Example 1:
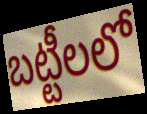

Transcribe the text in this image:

బట్టీలలో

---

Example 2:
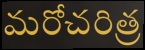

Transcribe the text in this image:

మరోచరిత్ర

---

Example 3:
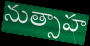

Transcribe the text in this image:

నుత్సాహ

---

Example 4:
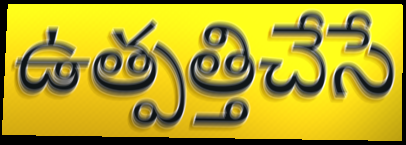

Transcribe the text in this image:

ఉత్పత్తిచేసే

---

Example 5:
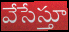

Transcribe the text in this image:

వేసేస్తూ